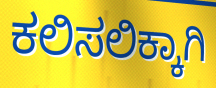
ಕಲಿಸಲಿಕ್ಕಾಗಿ